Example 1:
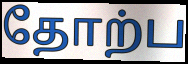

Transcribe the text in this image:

தோற்ப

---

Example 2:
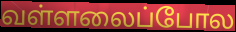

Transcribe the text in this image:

வள்ளலைப்போல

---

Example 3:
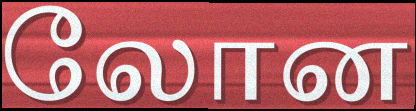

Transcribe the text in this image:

லோன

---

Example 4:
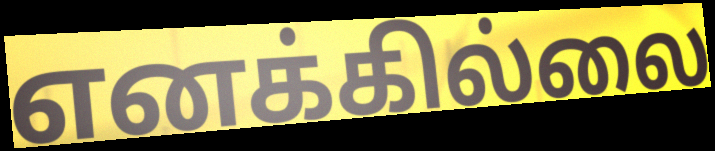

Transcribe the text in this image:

எனக்கில்லை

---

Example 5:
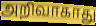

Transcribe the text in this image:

அறிவாகாது